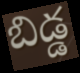
బిడ్డ